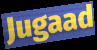
Jugaad